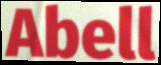
Abell